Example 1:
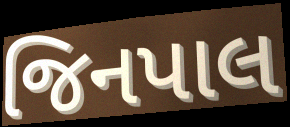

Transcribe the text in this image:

જિનપાલ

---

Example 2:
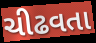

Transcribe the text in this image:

ચીઢવતા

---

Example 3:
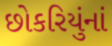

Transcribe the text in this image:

છોકરિયુંનાં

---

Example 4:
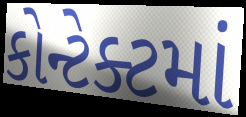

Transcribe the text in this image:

કોન્ટેક્ટમાં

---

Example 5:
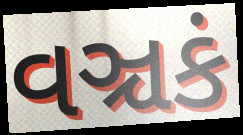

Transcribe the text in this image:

વઞ્ચકં